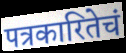
पत्रकारितेचं